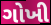
ગોખી